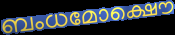
ബംധമോക്ഷൌ